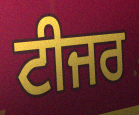
ਟੀਜਰ